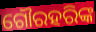
ଗୌରହରିଙ୍କ